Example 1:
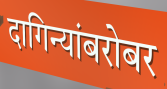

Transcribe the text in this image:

दागिन्यांबरोबर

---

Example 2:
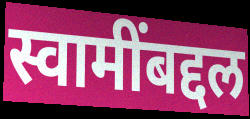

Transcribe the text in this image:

स्वामींबद्दल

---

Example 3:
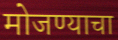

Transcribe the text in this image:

मोजण्याचा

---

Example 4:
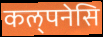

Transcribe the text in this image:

कल्पनेसि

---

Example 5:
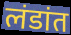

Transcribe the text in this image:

लंडांत